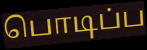
பொடிப்ப